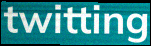
twitting